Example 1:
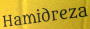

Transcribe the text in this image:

Hamidreza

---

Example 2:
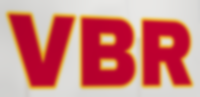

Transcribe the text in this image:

VBR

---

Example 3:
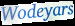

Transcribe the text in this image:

Wodeyars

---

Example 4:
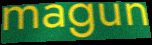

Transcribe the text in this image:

magun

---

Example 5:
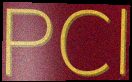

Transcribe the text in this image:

PCl